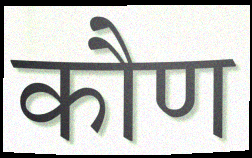
कौण